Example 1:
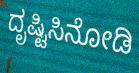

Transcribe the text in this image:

ದೃಷ್ಟಿಸಿನೋಡಿ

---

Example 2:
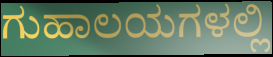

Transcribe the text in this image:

ಗುಹಾಲಯಗಳಲ್ಲಿ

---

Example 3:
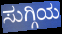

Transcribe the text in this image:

ಸುಗ್ಗಿಯ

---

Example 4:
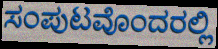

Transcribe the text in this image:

ಸಂಪುಟವೊಂದರಲ್ಲಿ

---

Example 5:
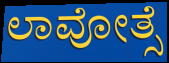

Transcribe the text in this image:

ಲಾವೋತ್ಸೆ